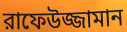
রাফেউজ্জামান